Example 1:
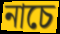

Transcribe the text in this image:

নাচে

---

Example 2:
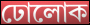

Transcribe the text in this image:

ঢোলোক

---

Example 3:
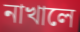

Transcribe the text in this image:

নাখালে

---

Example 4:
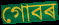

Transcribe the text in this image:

গোবৰ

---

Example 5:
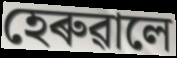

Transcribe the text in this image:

হেৰুৱালে